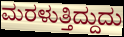
ಮರಳುತ್ತಿದ್ದುದು